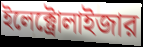
ইলেক্ট্রোলাইজার